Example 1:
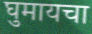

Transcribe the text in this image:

घुमायचा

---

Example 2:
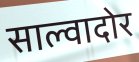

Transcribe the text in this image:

साल्वादोर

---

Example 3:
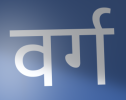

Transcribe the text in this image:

वर्ग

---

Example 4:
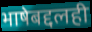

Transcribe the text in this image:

भाषेबद्दलही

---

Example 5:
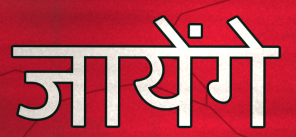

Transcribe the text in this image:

जायेंगे